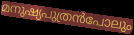
മനുഷ്യപുത്രൻപോലും